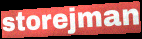
storejman